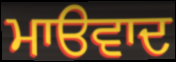
ਮਾੳਵਾਦ